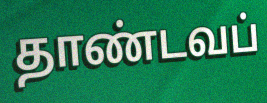
தாண்டவப்